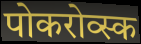
पोकरोव्स्क